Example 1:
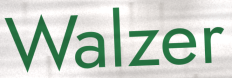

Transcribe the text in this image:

Walzer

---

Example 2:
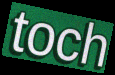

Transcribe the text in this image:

toch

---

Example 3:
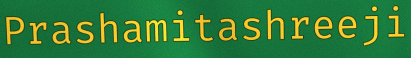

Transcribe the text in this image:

Prashamitashreeji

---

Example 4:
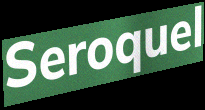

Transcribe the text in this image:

Seroquel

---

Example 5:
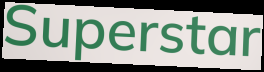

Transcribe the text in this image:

Superstar